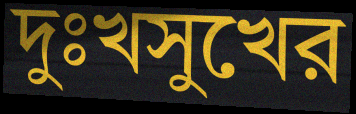
দুঃখসুখের